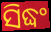
ସିଦ୍ଧଂ